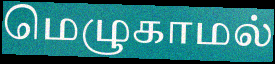
மெழுகாமல்